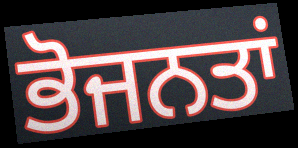
ਭੋਜਨਤਾਂ